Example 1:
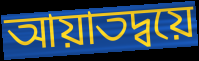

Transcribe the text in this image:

আয়াতদ্বয়ে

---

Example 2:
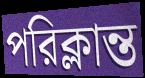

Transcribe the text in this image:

পরিক্লান্ত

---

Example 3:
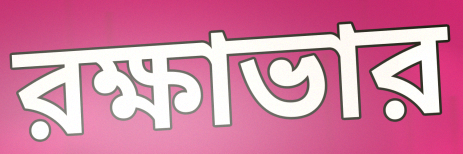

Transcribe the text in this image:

রক্ষাভার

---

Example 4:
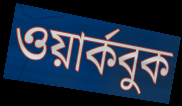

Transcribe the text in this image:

ওয়ার্কবুক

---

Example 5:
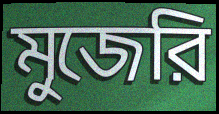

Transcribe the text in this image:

মুজেরি